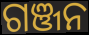
ଗଞ୍ଜନ